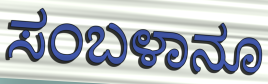
ಸಂಬಳಾನೂ